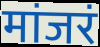
मांजरं